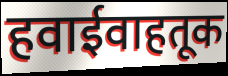
हवाईवाहतूक